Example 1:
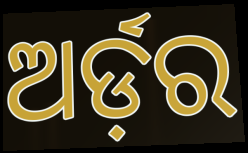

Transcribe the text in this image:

ଅର୍ଡ଼ର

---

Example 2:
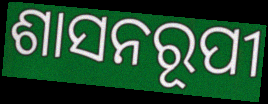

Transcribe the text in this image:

ଶାସନରୂପୀ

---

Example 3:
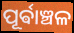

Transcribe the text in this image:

ପୂର୍ଵାଞ୍ଚଳ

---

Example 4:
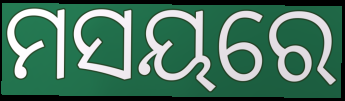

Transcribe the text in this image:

ମସୟରେ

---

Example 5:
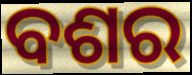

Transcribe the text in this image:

ବଶର